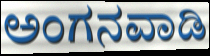
ಅಂಗನವಾಡಿ